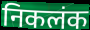
निकलंक